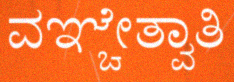
ವಞ್ಚೇತ್ವಾತಿ